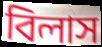
বিলাস